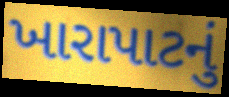
ખારાપાટનું